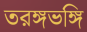
তরঙ্গভঙ্গি